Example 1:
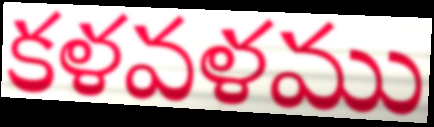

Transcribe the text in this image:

కళవళము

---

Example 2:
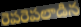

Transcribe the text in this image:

రెపరెపలాడిన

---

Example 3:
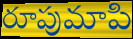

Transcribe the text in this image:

రూపుమాపి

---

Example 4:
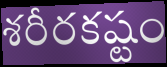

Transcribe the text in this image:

శరీరకష్టం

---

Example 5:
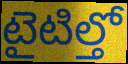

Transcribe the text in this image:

టైటిల్తో